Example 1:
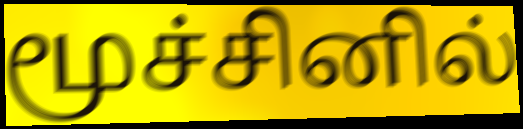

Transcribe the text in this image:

மூச்சினில்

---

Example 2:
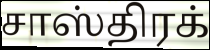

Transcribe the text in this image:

சாஸ்திரக்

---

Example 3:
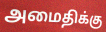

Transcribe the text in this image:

அமைதிக்கு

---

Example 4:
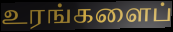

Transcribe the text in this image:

உரங்களைப்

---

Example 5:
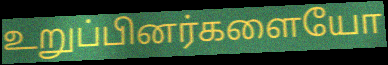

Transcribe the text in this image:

உறுப்பினர்களையோ